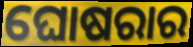
ଘୋଷରାର